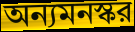
অন্যমনস্কর